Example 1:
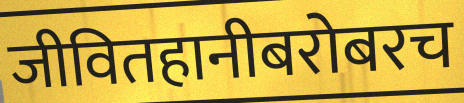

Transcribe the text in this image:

जीवितहानीबरोबरच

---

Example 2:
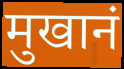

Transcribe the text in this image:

मुखानं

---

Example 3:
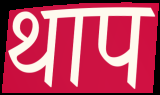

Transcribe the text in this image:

थाप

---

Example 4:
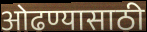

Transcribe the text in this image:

ओढण्यासाठी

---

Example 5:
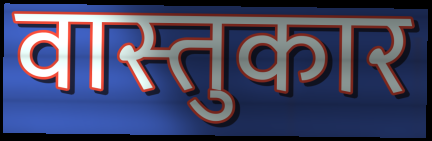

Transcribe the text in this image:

वास्तुकार